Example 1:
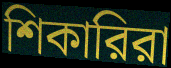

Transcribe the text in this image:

শিকারিরা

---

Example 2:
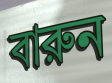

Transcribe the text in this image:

বারুন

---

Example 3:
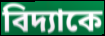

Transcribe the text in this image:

বিদ্যাকে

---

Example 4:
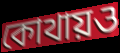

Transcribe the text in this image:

কোথায়ও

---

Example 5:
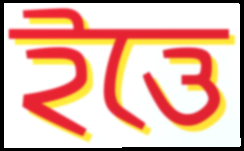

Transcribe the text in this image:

ইত্তে